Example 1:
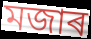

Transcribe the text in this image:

মজাৰ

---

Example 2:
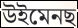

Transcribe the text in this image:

উইমেনছ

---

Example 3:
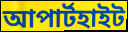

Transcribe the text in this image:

আপাৰ্টহাইট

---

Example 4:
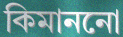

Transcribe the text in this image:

কিমাননো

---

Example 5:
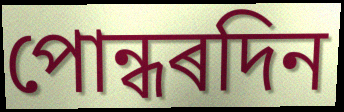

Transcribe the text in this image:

পোন্ধৰদিন